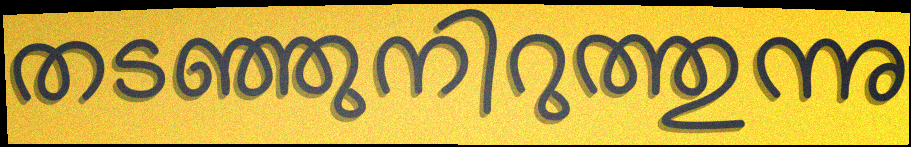
തടഞ്ഞുനിറുത്തുന്നു